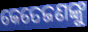
କେତେଜଣଙ୍କୁ